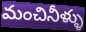
మంచినీళ్ళు